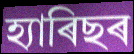
হ্যাৰিছৰ